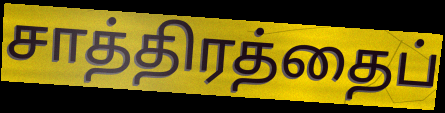
சாத்திரத்தைப்